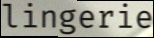
lingerie